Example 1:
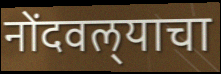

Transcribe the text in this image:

नोंदवल्याचा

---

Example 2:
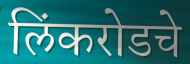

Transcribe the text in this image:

लिंकरोडचे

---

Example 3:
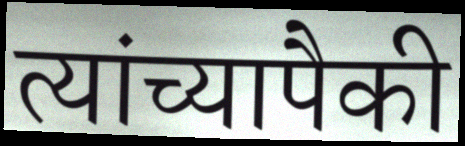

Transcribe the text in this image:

त्यांच्यापैकी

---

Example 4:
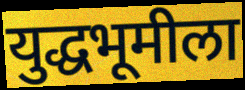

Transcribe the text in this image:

युद्धभूमीला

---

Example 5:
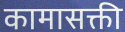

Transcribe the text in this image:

कामासक्ती